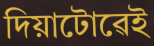
দিয়াটোৱেই